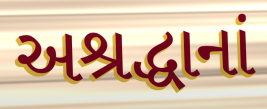
અશ્રદ્ધાનાં